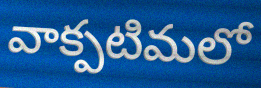
వాక్పటిమలో